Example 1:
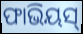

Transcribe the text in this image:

ଫାଭିୟସ୍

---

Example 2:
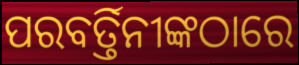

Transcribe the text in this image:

ପରବର୍ତ୍ତିନୀଙ୍କଠାରେ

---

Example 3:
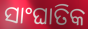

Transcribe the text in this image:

ସାଂଘାତିକ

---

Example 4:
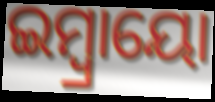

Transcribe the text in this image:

ଇମ୍ବ୍ରାୟୋ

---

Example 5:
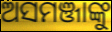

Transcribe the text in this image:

ଅସମଞ୍ଜାଙ୍କୁ